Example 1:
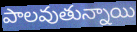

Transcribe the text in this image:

పాలవుతున్నాయి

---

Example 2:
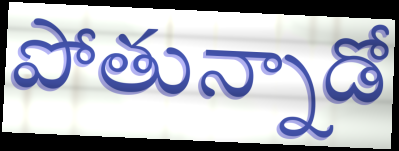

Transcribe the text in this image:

పోతున్నాడో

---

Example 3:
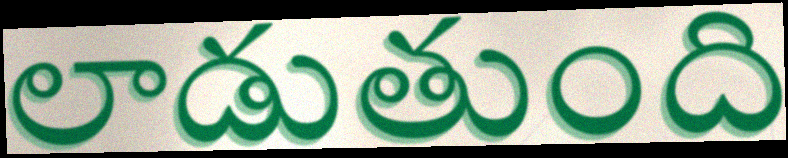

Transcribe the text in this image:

లాడుతుంది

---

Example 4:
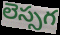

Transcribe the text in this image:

లెస్సగ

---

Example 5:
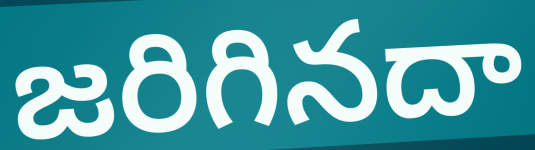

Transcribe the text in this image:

జరిగినదా